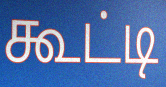
கூட்டி